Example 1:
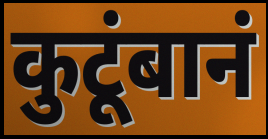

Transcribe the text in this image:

कुटूंबानं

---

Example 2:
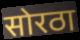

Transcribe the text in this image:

सोरठा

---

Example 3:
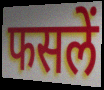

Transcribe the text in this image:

फसलें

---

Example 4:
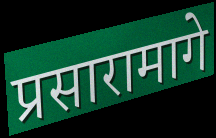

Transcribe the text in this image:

प्रसारामागे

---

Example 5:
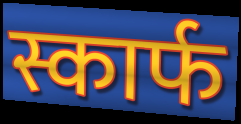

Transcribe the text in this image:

स्कार्फ